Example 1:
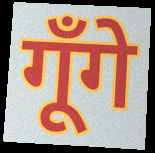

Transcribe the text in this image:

गूँगे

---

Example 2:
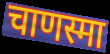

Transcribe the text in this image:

चाणस्मा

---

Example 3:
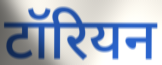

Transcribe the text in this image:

टॉरियन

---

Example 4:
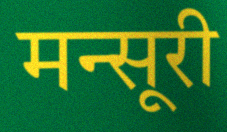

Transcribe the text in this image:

मन्सूरी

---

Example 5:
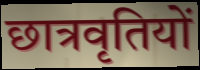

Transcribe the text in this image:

छात्रवृतियों